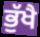
ਭੁੱਖੈ